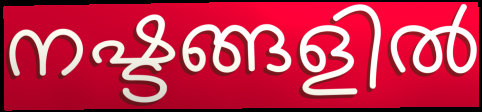
നഷ്ടങ്ങളിൽ